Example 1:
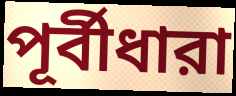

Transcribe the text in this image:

পূর্বীধারা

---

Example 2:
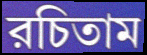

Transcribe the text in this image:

রচিতাম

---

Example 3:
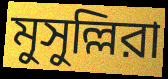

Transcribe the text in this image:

মুসুল্লিরা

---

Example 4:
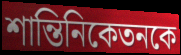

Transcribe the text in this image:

শান্তিনিকেতনকে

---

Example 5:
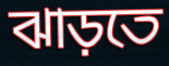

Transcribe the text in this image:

ঝাড়তে